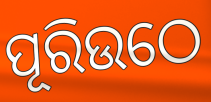
ପୂରିଉଠେ